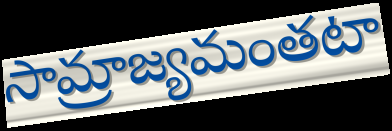
సామ్రాజ్యమంతటా